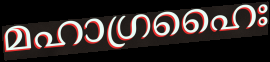
മഹാഗ്രഹൈഃ